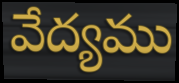
వేద్యము